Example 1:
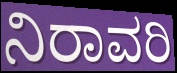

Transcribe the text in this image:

ನಿರಾವರಿ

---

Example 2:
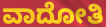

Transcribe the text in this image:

ವಾದೋತಿ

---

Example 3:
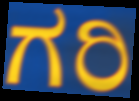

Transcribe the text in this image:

ಗರಿ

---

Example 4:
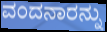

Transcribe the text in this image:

ವಂದನಾರನ್ನು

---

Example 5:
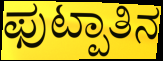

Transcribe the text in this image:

ಫುಟ್ಪಾತಿನ